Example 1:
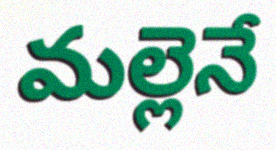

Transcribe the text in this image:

మల్లెనే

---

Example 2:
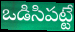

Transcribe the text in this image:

ఒడిసిపట్టే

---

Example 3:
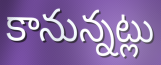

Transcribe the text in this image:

కానున్నట్లు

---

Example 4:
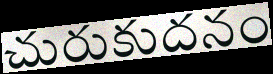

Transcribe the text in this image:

చురుకుదనం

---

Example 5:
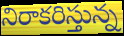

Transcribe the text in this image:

నిరాకరిస్తున్న